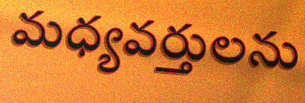
మధ్యవర్తులను